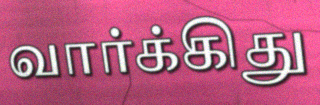
வார்க்கிது